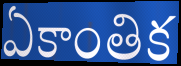
ఏకాంతిక